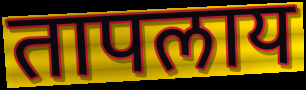
तापलाय